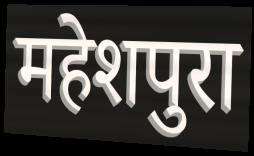
महेशपुरा